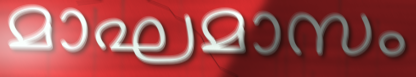
മാഘമാസം